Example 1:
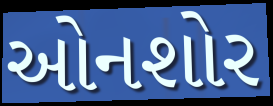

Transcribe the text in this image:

ઓનશોર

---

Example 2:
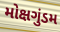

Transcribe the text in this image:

મોક્ષગુંડમ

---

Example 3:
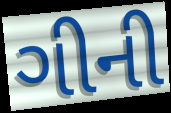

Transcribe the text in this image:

ગીની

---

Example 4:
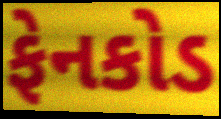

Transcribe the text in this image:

ફેનકોડ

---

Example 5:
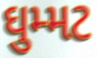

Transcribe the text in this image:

ઘુમ્મટ